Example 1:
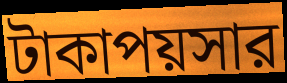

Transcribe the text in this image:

টাকাপয়সার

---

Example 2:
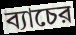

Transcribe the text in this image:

ব্যাচের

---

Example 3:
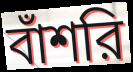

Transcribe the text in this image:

বাঁশরি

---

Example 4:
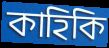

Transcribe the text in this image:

কাহিকি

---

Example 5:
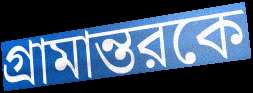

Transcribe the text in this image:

গ্রামান্তরকে